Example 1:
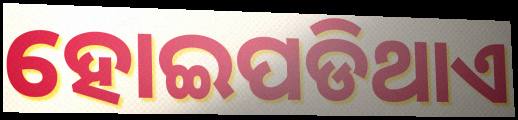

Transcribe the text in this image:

ହୋଇପଡିଥାଏ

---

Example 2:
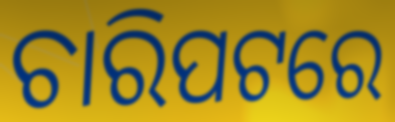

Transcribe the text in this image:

ଚାରିପଟରେ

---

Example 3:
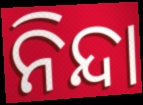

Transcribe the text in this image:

ନିନ୍ଦା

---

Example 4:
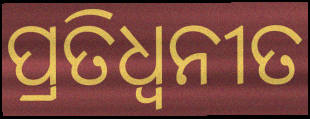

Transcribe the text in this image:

ପ୍ରତିଧ୍ବନୀତ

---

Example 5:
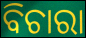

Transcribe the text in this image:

ବିଚାରା